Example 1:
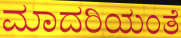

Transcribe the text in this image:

ಮಾದರಿಯಂತೆ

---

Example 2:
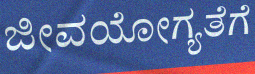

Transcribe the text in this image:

ಜೀವಯೋಗ್ಯತೆಗೆ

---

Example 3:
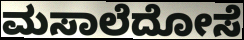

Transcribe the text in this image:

ಮಸಾಲೆದೋಸೆ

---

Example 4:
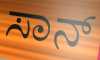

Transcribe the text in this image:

ಸಾನ್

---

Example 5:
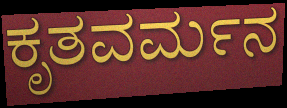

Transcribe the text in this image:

ಕೃತವರ್ಮನ